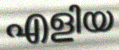
എളിയ